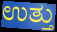
ಉತ್ತು